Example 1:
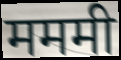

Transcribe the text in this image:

मममी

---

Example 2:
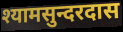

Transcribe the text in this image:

श्यामसुन्दरदास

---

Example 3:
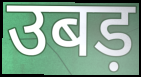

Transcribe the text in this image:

उबड़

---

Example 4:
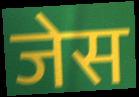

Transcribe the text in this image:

जेस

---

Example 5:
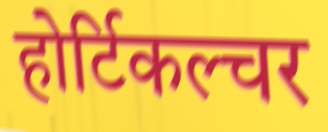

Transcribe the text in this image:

होर्टिकल्चर